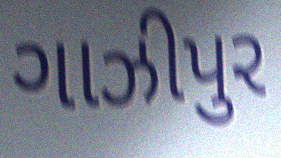
ગાઝીપુર